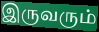
இருவரும்